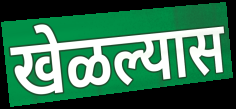
खेळल्यास